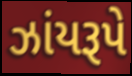
ઝાંયરૂપે